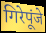
गिरेपूंजे